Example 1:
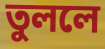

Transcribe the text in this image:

তুললে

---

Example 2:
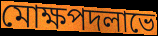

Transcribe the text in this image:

মোক্ষপদলাভে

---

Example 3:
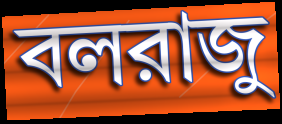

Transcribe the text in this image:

বলরাজু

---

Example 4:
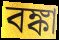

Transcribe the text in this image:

বঙ্কা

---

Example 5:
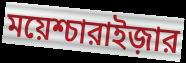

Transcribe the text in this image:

ময়েশ্চারাইজ়ার